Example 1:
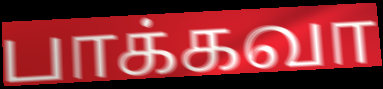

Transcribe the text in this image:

பாக்கவா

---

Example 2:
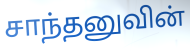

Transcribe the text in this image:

சாந்தனுவின்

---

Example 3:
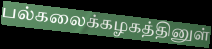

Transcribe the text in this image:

பல்கலைக்கழகத்தினுள்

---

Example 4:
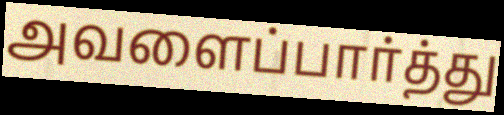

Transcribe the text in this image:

அவளைப்பார்த்து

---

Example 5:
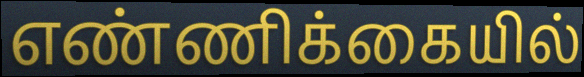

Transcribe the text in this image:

எண்ணிக்கையில்